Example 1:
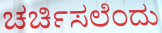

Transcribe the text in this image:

ಚರ್ಚಿಸಲೆಂದು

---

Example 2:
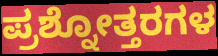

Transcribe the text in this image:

ಪ್ರಶ್ನೋತ್ತರಗಳ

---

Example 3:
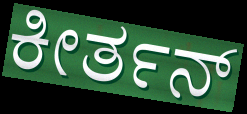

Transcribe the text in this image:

ಕೀರ್ತನ್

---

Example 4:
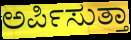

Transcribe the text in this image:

ಅರ್ಪಿಸುತ್ತಾ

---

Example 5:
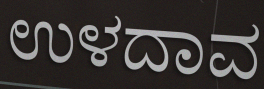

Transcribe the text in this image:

ಉಳದಾವ